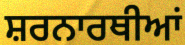
ਸ਼ਰਨਾਰਥੀਆਂ